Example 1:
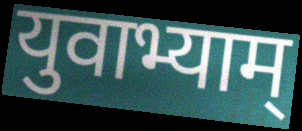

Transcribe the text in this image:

युवाभ्याम्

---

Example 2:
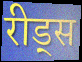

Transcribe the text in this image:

रीड्स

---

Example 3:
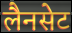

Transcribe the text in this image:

लैनसेट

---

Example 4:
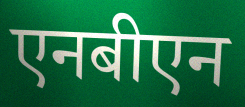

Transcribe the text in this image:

एनबीएन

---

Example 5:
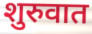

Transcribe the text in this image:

शुरुवात